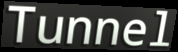
Tunnel